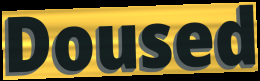
Doused